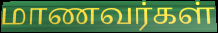
மாணவர்கள்